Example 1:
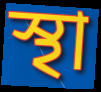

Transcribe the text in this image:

স্থা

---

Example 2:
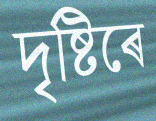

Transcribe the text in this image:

দৃষ্টিৰে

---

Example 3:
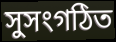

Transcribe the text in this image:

সুসংগঠিত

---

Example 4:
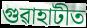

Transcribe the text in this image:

গুৱাহাটীত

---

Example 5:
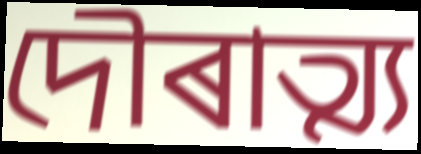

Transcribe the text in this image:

দৌৰাত্ম্য